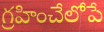
గ్రహించేలోపే